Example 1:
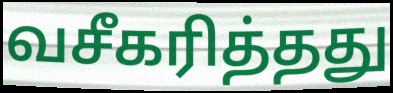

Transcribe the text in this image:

வசீகரித்தது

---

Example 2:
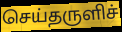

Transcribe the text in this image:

செய்தருளிச்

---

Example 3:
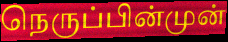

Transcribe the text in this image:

நெருப்பின்முன்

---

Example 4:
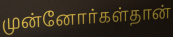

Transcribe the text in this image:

முன்னோர்கள்தான்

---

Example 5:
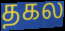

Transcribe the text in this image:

தகல